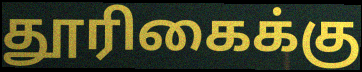
தூரிகைக்கு